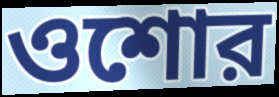
ওশোর